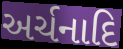
અર્ચનાદિ